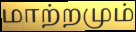
மாற்றமும்